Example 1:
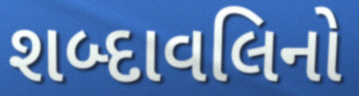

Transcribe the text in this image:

શબ્દાવલિનો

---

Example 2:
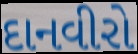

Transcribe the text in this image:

દાનવીરો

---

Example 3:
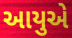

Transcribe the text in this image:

આયુએ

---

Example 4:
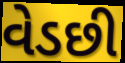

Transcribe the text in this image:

વેડછી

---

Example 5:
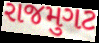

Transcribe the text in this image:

રાજમુગટ